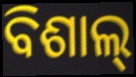
ବିଶାଲ୍